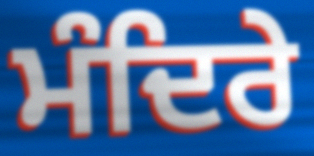
ਮੰਦਿਰੇ